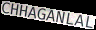
CHHAGANLAL